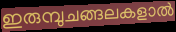
ഇരുമ്പുചങ്ങലകളാൽ